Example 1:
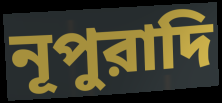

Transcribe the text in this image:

নূপুরাদি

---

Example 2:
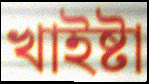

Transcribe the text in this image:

খাইষ্টা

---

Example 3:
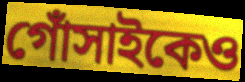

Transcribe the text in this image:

গোঁসাইকেও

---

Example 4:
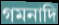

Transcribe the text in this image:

গমনাদি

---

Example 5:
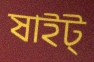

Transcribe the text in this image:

ষাইট্